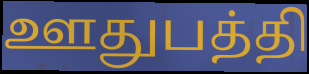
ஊதுபத்தி